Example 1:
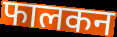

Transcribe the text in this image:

फालकन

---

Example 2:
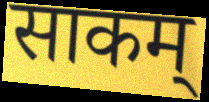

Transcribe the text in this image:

साकम्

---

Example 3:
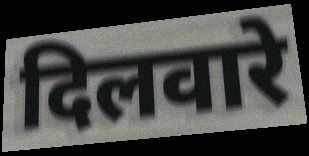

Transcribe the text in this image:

दिलवारे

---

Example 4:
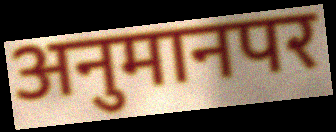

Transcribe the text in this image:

अनुमानपर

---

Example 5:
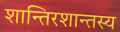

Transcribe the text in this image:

शान्तिरशान्तस्य